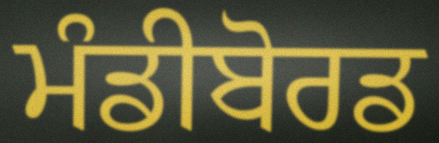
ਮੰਡੀਬੋਰਡ